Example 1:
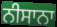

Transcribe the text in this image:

ਨੀਸਾਨਾ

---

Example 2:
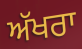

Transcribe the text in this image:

ਅੱਖਰਾ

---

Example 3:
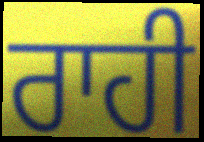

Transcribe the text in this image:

ਰਾਹੀ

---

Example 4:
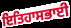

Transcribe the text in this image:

ਇਤਿਹਾਸਭਾਈ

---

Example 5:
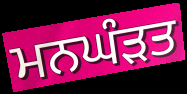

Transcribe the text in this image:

ਮਨਘੰੜਤ